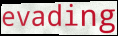
evading